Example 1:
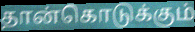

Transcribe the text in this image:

தான்கொடுக்கும்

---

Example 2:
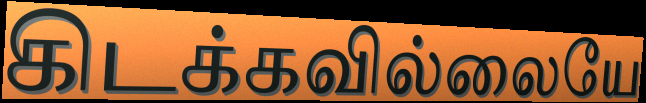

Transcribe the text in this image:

கிடக்கவில்லையே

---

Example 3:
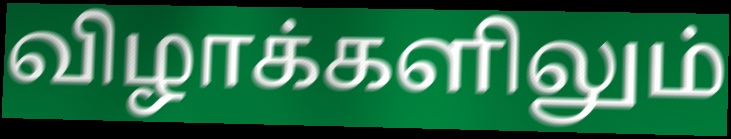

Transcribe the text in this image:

விழாக்களிலும்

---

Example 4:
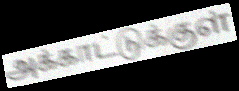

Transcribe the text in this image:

அக்காட்டுக்குள்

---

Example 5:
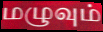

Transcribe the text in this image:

மழுவும்